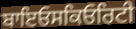
ਬਾਇਓਸਕਿਓਰਿਟੀ